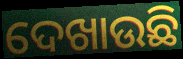
ଦେଖାଉଛି